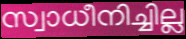
സ്വാധീനിച്ചില്ല